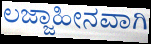
ಲಜ್ಜಾಹೀನವಾಗಿ